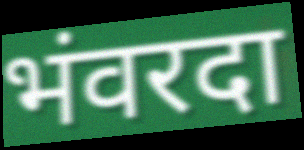
भंवरदा